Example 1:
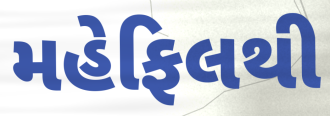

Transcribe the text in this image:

મહેફિલથી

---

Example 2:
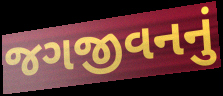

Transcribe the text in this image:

જગજીવનનું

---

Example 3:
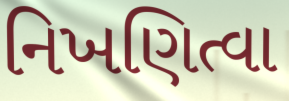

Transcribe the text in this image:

નિખણિત્વા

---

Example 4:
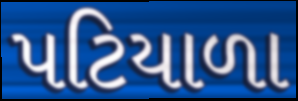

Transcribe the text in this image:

પટિયાળા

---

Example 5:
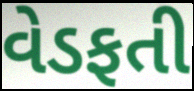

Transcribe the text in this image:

વેડફતી